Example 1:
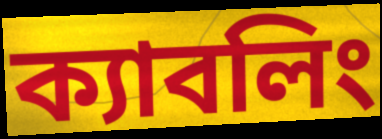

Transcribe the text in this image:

ক্যাবলিং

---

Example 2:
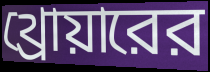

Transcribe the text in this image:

থ্রোয়ারের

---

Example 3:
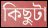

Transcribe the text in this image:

কিছুটা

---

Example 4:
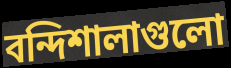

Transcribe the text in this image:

বন্দিশালাগুলো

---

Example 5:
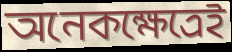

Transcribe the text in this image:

অনেকক্ষেত্রেই